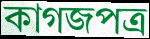
কাগজপত্ৰ